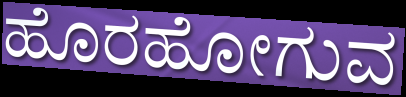
ಹೊರಹೋಗುವ